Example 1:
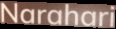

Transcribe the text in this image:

Narahari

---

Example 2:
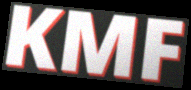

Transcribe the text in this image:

KMF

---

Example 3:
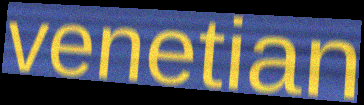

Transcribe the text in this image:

venetian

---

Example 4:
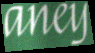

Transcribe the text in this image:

aney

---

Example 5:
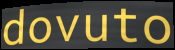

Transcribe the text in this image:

dovuto